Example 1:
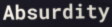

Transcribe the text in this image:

Absurdity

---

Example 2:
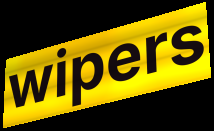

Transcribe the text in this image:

wipers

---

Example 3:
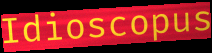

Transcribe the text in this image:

Idioscopus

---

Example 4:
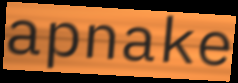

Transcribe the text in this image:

apnake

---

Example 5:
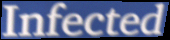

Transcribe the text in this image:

Infected